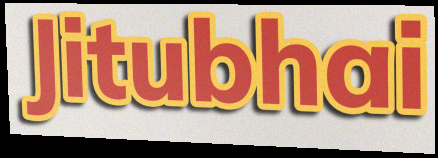
Jitubhai